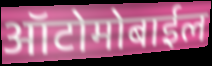
ऑटोमोबाईल